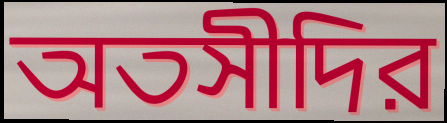
অতসীদির